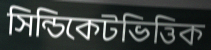
সিন্ডিকেটভিত্তিক